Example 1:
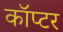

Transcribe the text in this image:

कॉप्टर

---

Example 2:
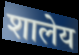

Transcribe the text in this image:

शालेय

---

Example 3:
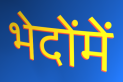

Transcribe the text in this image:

भेदोंमें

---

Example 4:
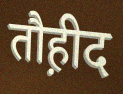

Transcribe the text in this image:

तौह़ीद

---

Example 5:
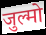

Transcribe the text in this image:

जुल्मो